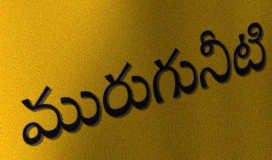
మురుగునీటి